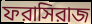
ফরাসিরাজ